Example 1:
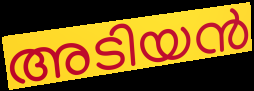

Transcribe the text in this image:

അടിയൻ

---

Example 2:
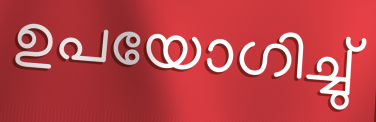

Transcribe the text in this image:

ഉപയോഗിച്ചു്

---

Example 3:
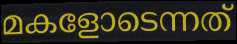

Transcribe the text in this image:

മകളോടെന്നത്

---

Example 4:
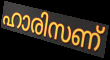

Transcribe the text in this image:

ഹാരിസണ്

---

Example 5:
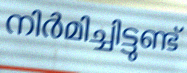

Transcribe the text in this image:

നിർമിച്ചിട്ടുണ്ട്